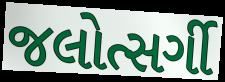
જલોત્સર્ગી